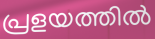
പ്രളയത്തിൽ